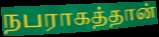
நபராகத்தான்